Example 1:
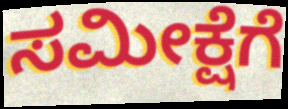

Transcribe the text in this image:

ಸಮೀಕ್ಷೆಗೆ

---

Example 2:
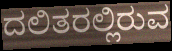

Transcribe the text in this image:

ದಲಿತರಲ್ಲಿರುವ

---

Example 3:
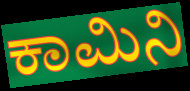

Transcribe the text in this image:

ಕಾಮಿನಿ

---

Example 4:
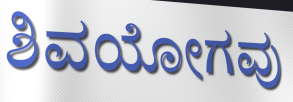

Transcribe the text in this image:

ಶಿವಯೋಗವು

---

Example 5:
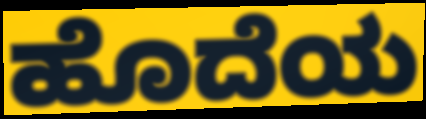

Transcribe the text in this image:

ಹೊದೆಯ